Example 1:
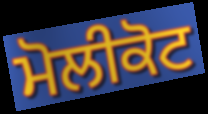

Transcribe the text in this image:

ਮੋਲੀਕੋਟ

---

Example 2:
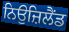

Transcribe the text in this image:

ਨਿਉਜ਼ਿਲੈਂਡ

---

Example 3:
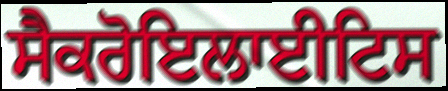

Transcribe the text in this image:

ਸੈਕਰੋਇਲਾਈਟਿਸ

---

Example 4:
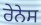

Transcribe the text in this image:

ਰੇਨੇਸ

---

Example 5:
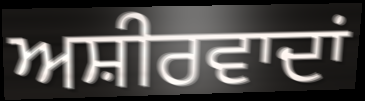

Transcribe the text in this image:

ਅਸ਼ੀਰਵਾਦਾਂ